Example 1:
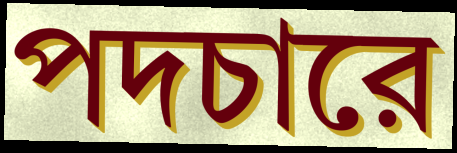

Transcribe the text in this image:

পদচারে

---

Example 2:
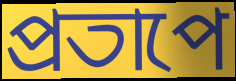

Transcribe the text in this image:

প্রতাপে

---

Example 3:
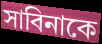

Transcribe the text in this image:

সাবিনাকে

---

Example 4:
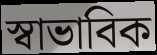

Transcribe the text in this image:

স্বাভাবিক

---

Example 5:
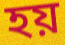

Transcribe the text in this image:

হয়